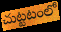
చుట్టటంలో